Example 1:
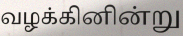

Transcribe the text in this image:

வழக்கினின்று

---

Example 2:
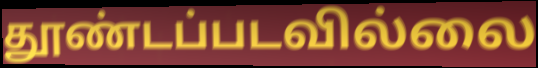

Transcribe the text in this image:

தூண்டப்படவில்லை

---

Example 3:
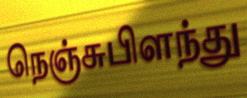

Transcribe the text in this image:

நெஞ்சுபிளந்து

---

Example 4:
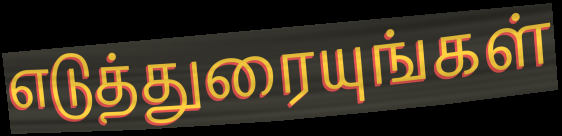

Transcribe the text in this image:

எடுத்துரையுங்கள்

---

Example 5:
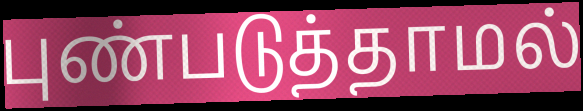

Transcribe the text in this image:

புண்படுத்தாமல்